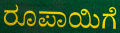
ರೂಪಾಯಿಗೆ